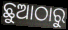
ଛୁଆଠାରୁ